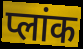
प्लांक